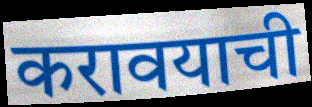
करावयाची